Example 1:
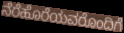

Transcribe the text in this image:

ನೆರೆಹೊರೆಯವರೊಂದಿಗೆ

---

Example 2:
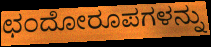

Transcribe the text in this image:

ಛಂದೋರೂಪಗಳನ್ನು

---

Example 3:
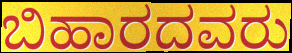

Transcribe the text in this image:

ಬಿಹಾರದವರು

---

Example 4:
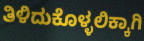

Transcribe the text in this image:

ತಿಳಿದುಕೊಳ್ಳಲಿಕ್ಕಾಗಿ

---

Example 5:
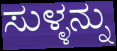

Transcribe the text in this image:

ಸುಳ್ಳನ್ನು